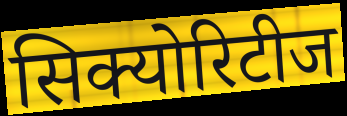
सिक्योरिटीज